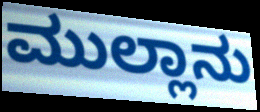
ಮುಲ್ಲಾನು